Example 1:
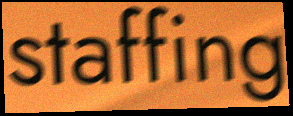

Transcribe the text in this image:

staffing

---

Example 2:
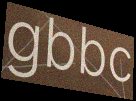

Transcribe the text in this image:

gbbc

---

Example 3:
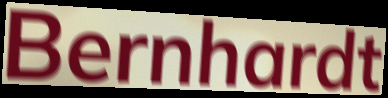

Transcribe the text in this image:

Bernhardt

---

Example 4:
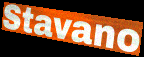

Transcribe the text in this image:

Stavano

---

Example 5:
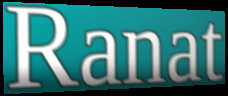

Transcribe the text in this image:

Ranat